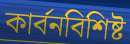
কার্বনবিশিষ্ট